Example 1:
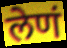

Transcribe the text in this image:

लेणं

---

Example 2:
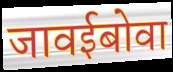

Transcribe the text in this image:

जावईबोवा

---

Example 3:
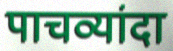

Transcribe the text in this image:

पाचव्यांदा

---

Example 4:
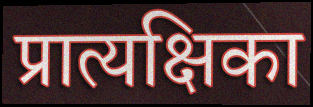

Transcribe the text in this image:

प्रात्यक्षिका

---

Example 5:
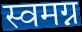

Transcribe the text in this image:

स्वमग्न